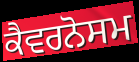
ਕੈਵਰਨੋਸਮ